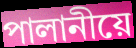
পালানীয়ে